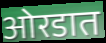
ओरडात